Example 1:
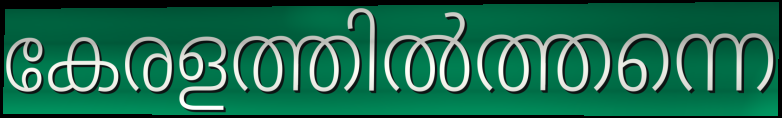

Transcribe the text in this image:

കേരളത്തിൽത്തന്നെ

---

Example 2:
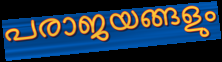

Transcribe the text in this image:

പരാജയങ്ങളും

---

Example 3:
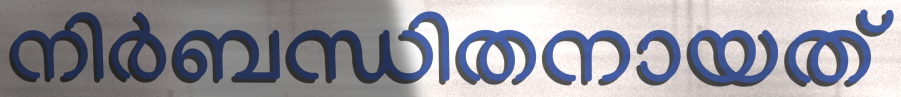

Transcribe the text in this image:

നിർബന്ധിതനായത്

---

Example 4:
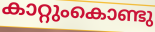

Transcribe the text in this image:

കാറ്റുംകൊണ്ടു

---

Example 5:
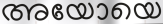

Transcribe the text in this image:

അയോയെ